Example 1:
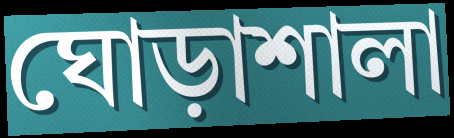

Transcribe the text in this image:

ঘোড়াশালা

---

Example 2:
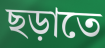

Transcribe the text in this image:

ছড়াতে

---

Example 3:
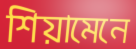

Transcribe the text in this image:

শিয়ামেনে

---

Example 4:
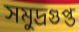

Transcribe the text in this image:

সমুদ্রগুপ্ত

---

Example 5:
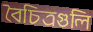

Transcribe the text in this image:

বৈচিত্রগুলি